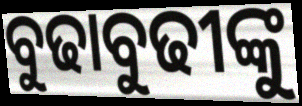
ବୁଢାବୁଢୀଙ୍କୁ